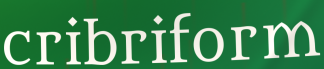
cribriform